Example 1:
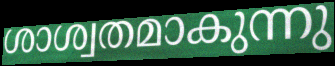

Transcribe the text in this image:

ശാശ്വതമാകുന്നു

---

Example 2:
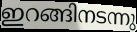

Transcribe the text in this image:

ഇറങ്ങിനടന്നു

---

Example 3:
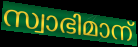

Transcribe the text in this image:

സ്വാഭിമാന്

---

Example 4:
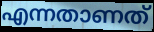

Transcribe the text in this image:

എന്നതാണത്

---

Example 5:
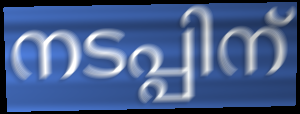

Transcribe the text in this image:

നടപ്പിന്